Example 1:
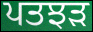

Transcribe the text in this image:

ਪਤਝਡ਼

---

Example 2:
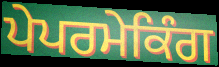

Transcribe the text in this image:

ਪੇਪਰਮੇਕਿੰਗ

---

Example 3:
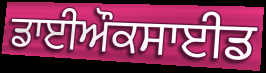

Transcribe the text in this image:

ਡਾਈਔਕਸਾਈਡ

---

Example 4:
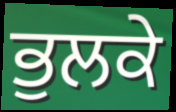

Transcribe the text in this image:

ਭੁਲਕੇ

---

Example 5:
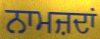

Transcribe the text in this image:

ਨਾਮਜ਼ਦਾਂ